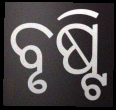
ବୃଷ୍ଟି